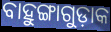
ବାହୁଙ୍ଗାଗୁଡ଼ାକ